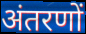
अंतरणों